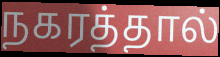
நகரத்தால்